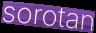
sorotan